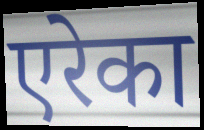
एरेका